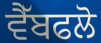
ਵੈੱਬਫਲੋ